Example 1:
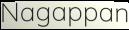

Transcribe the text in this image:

Nagappan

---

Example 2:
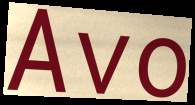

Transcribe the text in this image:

Avo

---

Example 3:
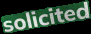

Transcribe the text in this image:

solicited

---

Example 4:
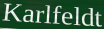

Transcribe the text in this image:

Karlfeldt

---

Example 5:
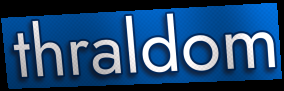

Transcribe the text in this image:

thraldom